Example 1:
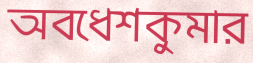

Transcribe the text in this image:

অবধেশকুমার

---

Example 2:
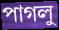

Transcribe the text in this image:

পাগলু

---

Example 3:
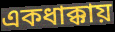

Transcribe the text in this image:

একধাক্কায়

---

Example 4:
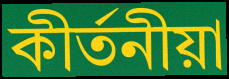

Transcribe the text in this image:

কীর্তনীয়া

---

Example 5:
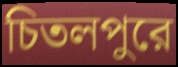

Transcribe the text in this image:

চিতলপুরে